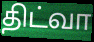
திட்வா